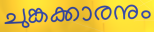
ചുങ്കക്കാരനും